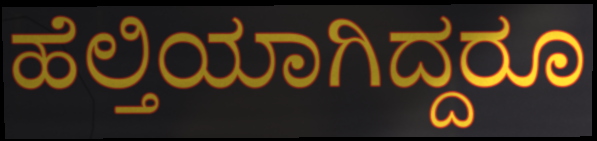
ಹೆಲ್ತಿಯಾಗಿದ್ದರೂ